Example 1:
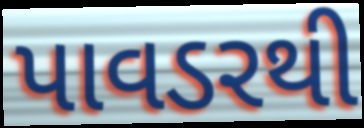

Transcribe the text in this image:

પાવડરથી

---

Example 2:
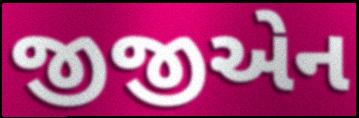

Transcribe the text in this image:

જીજીએન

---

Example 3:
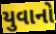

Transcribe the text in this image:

યુવાનો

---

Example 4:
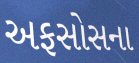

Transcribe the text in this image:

અફસોસના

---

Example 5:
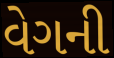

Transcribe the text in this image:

વેગની